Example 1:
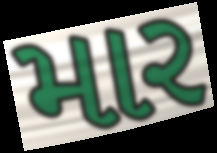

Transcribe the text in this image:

માર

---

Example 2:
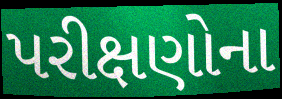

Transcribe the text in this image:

પરીક્ષણોના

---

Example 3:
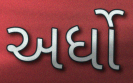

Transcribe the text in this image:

અર્ધો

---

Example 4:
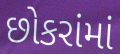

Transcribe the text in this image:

છોકરાંમાં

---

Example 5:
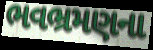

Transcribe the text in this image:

ભવભ્રમણના